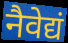
नैवेद्यं